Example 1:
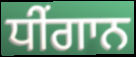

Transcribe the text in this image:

ਧੀਂਗਾਨ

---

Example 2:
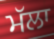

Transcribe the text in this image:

ਮੱਲਾ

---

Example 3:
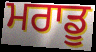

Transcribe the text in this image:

ਮਰਾਡੂ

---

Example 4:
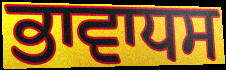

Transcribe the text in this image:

ਭਾਵਾਧਸ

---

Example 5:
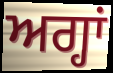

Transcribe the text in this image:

ਅਗ੍ਹਾਂ